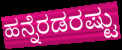
ಹನ್ನೆರಡರಷ್ಟು